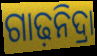
ଗାଢ଼ନିଦ୍ରା